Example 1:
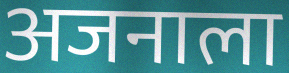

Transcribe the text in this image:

अजनाला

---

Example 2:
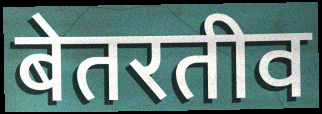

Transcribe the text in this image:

बेतरतीव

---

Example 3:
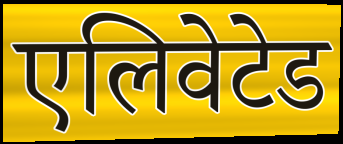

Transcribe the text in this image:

एलिवेटेड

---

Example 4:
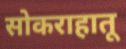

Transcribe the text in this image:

सोकराहातू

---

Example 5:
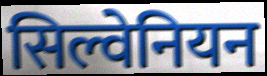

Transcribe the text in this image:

सिल्वेनियन